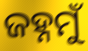
ଜହ୍ନମୁଁ